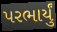
પરભાર્યું